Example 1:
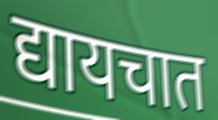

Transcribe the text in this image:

द्यायचात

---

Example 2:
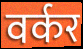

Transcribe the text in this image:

वर्कर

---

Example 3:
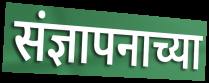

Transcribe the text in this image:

संज्ञापनाच्या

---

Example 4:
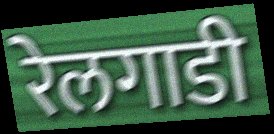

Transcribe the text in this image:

रेलगाडी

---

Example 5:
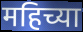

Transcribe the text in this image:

महिच्या